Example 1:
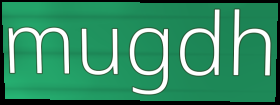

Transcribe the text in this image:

mugdh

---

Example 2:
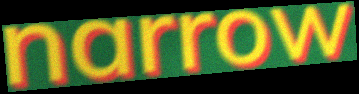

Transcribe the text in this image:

narrow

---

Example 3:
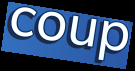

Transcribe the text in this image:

coup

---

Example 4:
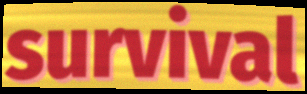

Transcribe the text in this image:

survival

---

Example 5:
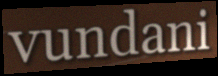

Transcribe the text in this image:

vundani